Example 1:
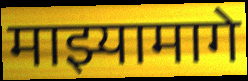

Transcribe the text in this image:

माझ्यामागे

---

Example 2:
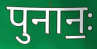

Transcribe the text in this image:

पुना॒नः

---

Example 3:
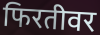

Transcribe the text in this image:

फिरतीवर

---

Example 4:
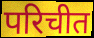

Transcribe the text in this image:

परिचीत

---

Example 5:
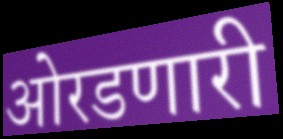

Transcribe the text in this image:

ओरडणारी